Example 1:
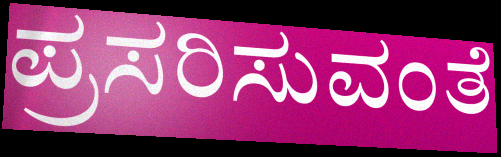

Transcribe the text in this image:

ಪ್ರಸರಿಸುವಂತೆ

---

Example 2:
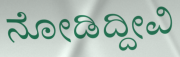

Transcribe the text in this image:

ನೋಡಿದ್ದೀವಿ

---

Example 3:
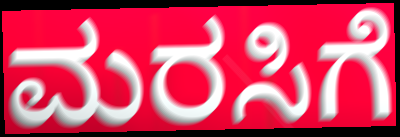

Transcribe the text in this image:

ಮರಸಿಗೆ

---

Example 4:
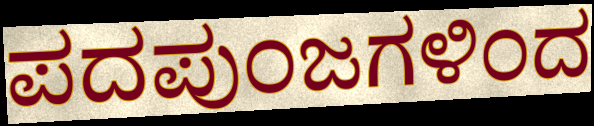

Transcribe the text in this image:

ಪದಪುಂಜಗಳಿಂದ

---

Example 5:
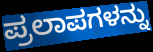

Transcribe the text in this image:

ಪ್ರಲಾಪಗಳನ್ನು